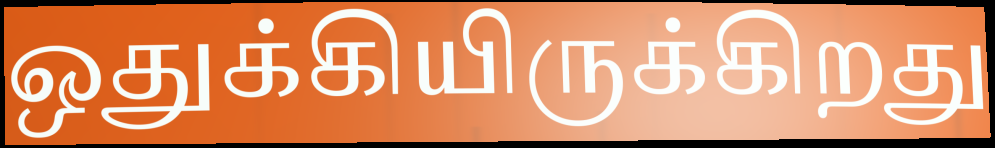
ஒதுக்கியிருக்கிறது